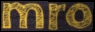
mro